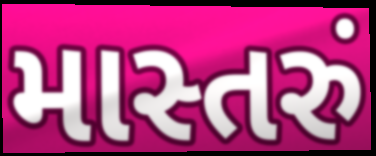
માસ્તરું